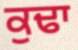
ਕੁਢਾ